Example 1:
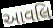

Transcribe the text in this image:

આવલિ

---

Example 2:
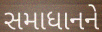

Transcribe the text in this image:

સમાધાનને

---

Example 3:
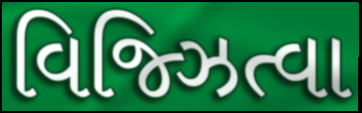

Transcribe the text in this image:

વિજ્ઝિત્વા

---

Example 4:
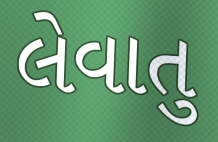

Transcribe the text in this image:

લેવાતુ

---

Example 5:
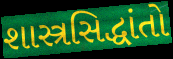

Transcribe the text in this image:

શાસ્ત્રસિદ્ધાંતો